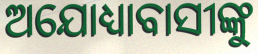
ଅଯୋଧ୍ୟାବାସୀଙ୍କୁ